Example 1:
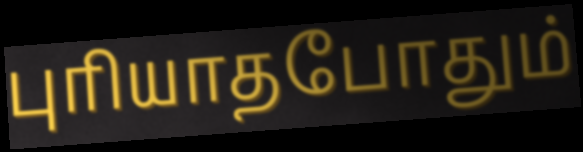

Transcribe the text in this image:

புரியாதபோதும்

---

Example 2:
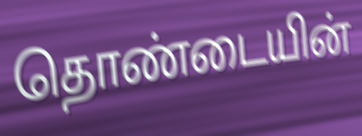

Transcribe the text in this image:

தொண்டையின்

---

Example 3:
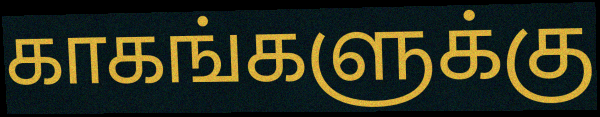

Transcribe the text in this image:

காகங்களுக்கு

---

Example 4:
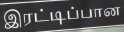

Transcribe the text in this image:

இரட்டிப்பான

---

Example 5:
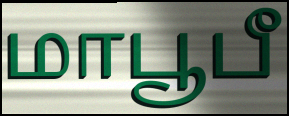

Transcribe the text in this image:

மாபூபீ